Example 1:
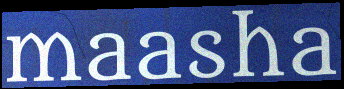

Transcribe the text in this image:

maasha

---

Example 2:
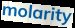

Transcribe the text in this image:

molarity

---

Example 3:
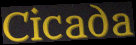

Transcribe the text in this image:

Cicada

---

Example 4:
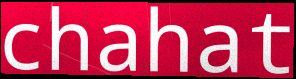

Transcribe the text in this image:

chahat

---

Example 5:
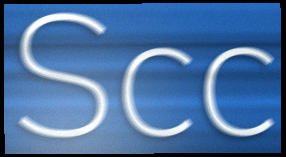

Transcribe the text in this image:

Scc